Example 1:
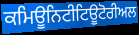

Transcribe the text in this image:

ਕਮਿਊਨਿਟੀਟਿਊਟੋਰੀਅਲ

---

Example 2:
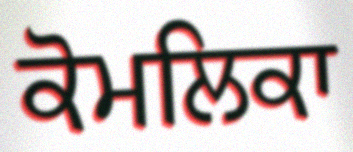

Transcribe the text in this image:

ਕੋਮਲਿਕਾ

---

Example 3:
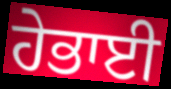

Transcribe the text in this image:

ਹੇਭਾਈ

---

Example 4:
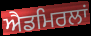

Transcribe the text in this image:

ਐਡਮਿਰਲਾਂ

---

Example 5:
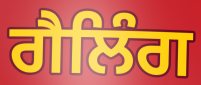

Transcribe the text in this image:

ਗੈਲਿੰਗ